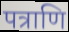
पत्राणि